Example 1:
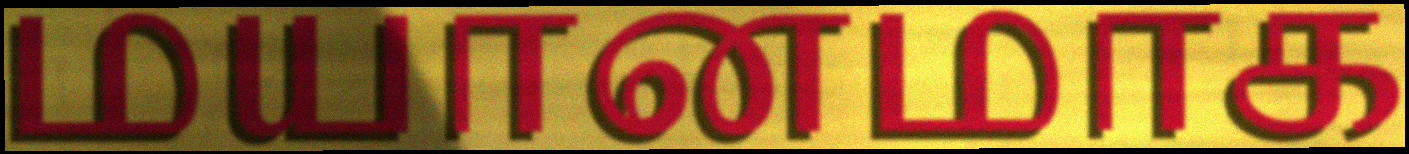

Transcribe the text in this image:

மயானமாக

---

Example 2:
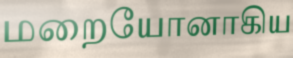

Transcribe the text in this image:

மறையோனாகிய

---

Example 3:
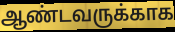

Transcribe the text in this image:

ஆண்டவருக்காக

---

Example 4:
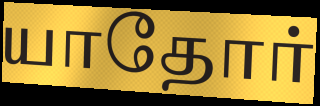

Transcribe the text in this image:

யாதோர்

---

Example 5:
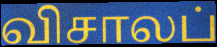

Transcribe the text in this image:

விசாலப்